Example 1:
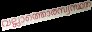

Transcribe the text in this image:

വല്ലാത്തൊരസ്വസ്ഥത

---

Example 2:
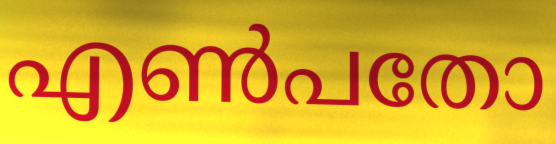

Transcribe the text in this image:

എൺപതോ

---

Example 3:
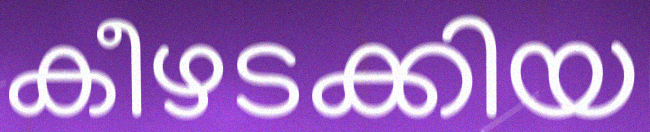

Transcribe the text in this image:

കീഴടക്കിയ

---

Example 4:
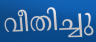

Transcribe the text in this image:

വീതിച്ചു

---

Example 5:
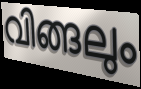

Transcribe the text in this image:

വിങ്ങലും